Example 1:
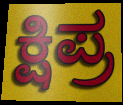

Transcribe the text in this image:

ಕ್ಷಿಪ್ರ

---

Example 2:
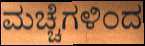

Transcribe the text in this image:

ಮಚ್ಚೆಗಳಿಂದ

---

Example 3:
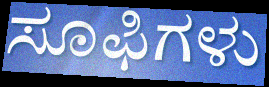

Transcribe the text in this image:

ಸೂಫಿಗಳು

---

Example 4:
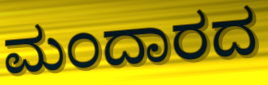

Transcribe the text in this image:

ಮಂದಾರದ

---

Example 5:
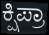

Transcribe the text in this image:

ಕ್ಷಿಪ್ರಾ